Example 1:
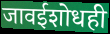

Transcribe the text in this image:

जावईशोधही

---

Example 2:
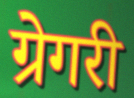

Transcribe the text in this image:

ग्रेगरी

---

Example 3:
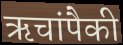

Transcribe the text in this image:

ऋचांपैकी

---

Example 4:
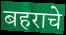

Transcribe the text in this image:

बहराचे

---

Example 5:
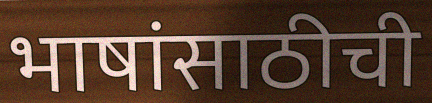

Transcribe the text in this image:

भाषांसाठीची